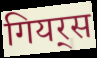
गियर्स